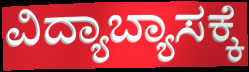
ವಿದ್ಯಾಬ್ಯಾಸಕ್ಕೆ